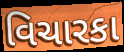
વિચારકા